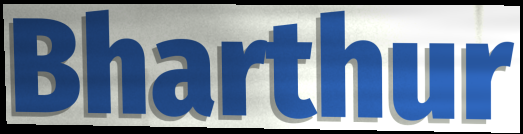
Bharthur